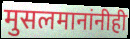
मुसलमानांनीही